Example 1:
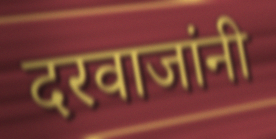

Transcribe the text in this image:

दरवाजांनी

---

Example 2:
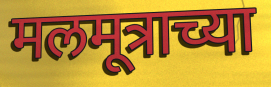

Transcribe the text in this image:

मलमूत्राच्या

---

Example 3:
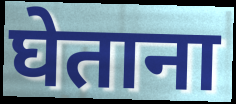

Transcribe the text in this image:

घेताना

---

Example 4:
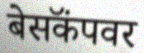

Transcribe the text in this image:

बेसकॅंपवर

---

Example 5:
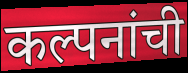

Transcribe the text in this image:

कल्पनांची